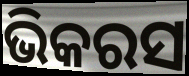
ଭିକରସ